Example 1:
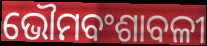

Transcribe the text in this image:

ଭୌମବଂଶାବଳୀ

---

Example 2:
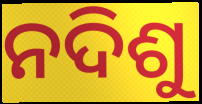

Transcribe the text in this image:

ନଦିଶୁ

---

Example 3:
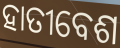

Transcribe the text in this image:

ହାତୀବେଶ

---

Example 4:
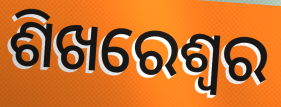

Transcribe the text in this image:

ଶିଖରେଶ୍ୱର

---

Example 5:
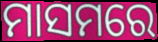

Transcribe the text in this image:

ମାସମରେ